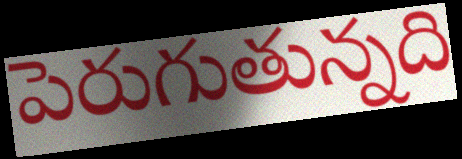
పెరుగుతున్నది